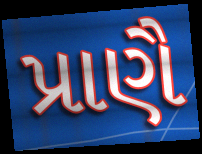
પ્રાણૈ